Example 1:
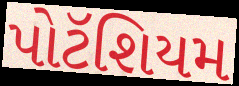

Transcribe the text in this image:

પોટૅશિયમ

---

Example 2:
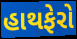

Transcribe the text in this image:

હાથફેરો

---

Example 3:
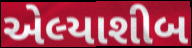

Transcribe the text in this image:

એલ્યાશીબ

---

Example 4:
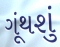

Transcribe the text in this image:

ગૂંથશું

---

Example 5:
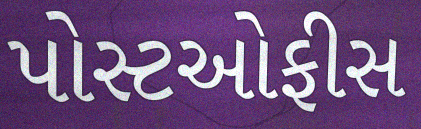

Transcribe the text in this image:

પોસ્ટઓફીસ